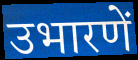
उभारणें